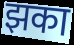
झका